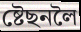
ষ্টেছনলৈ